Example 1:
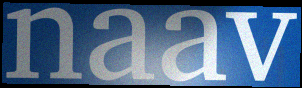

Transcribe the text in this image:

naav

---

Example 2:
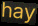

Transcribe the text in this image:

hay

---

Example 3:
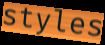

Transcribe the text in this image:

styles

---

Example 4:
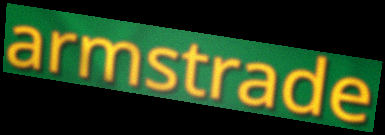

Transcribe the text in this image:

armstrade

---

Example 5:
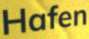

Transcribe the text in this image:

Hafen